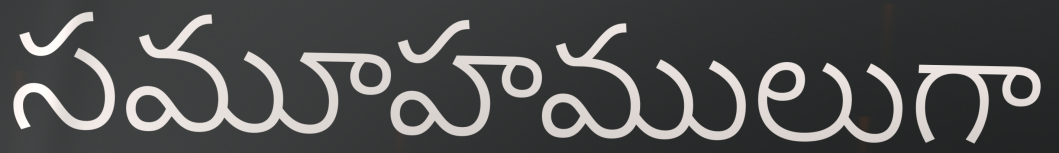
సమూహములుగా